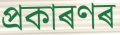
প্ৰকাৰণৰ